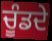
ਚੂੰਡਦੇ